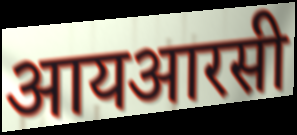
आयआरसी